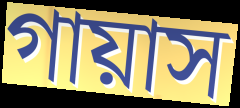
গায়াস